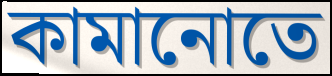
কামানোতে